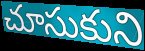
చూసుకుని